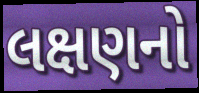
લક્ષણનો